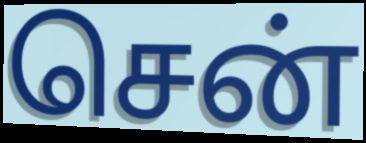
சென்